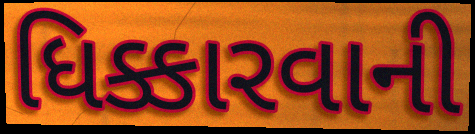
ધિક્કારવાની